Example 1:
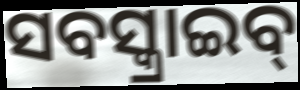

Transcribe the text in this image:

ସବସ୍କ୍ରାଇବ୍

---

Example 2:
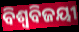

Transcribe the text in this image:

ବିଶ୍ବବିଜୟୀ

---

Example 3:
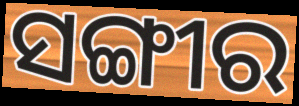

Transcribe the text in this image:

ସଙ୍ଗୀର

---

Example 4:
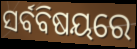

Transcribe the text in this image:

ସର୍ବବିଷୟରେ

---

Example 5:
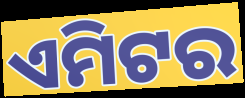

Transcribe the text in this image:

ଏମିଟର